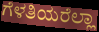
ಗೆಳತಿಯರೆಲ್ಲಾ